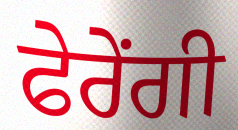
ਫੇਰੇਂਗੀ